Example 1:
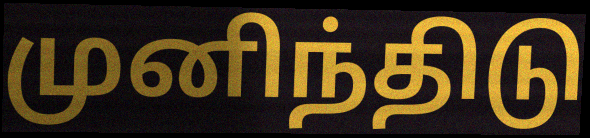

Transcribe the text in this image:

முனிந்திடு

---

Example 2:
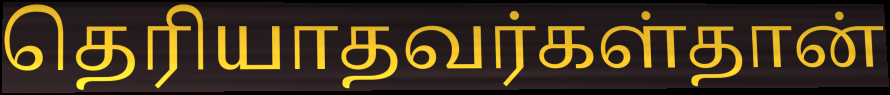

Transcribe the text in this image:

தெரியாதவர்கள்தான்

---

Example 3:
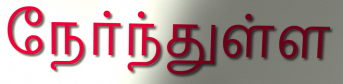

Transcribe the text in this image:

நேர்ந்துள்ள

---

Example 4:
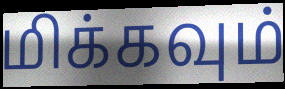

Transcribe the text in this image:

மிக்கவும்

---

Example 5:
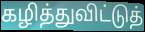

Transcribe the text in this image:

கழித்துவிட்டுத்